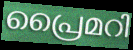
പ്രൈമറി